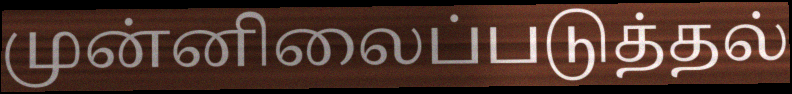
முன்னிலைப்படுத்தல்